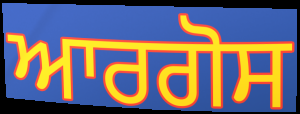
ਆਰਗੋਸ